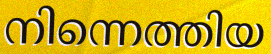
നിന്നെത്തിയ